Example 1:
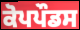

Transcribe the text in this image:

ਕੋਪਪੌਡਸ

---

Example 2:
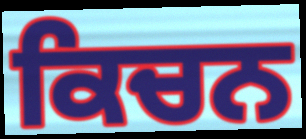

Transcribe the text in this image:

ਕਿਚਨ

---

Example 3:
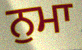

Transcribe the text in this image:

ਨੁਮਾ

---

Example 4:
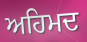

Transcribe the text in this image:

ਅਹਿਮਦ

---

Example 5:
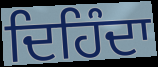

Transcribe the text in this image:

ਦਿਹਿੰਦਾ